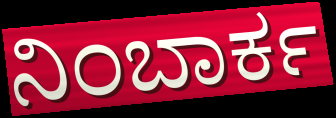
ನಿಂಬಾರ್ಕ